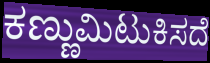
ಕಣ್ಣುಮಿಟುಕಿಸದೆ